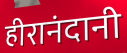
हीरानंदानी